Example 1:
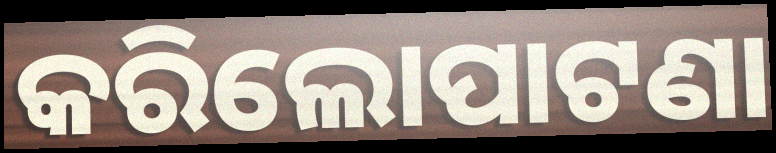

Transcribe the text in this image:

କରିଲୋପାଟଣା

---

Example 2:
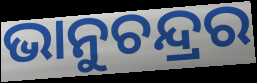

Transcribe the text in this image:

ଭାନୁଚନ୍ଦ୍ରର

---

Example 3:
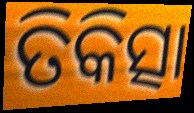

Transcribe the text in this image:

ତିକିତ୍ସା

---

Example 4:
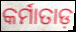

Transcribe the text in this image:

କର୍ମାତାଡ଼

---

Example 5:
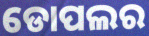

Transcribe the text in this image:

ଡୋପଲର